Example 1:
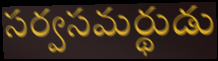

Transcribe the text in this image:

సర్వసమర్థుడు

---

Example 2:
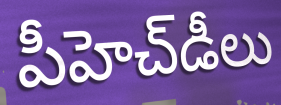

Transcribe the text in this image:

పీహెచ్‌డీలు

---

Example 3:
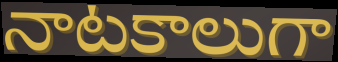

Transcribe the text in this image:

నాటకాలుగా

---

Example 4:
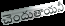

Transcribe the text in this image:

చెందుతాయనీ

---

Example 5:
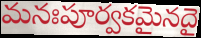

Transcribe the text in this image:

మనఃపూర్వకమైనదై